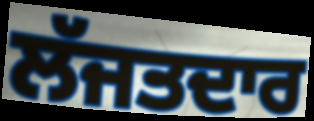
ਲੱਜਤਦਾਰ